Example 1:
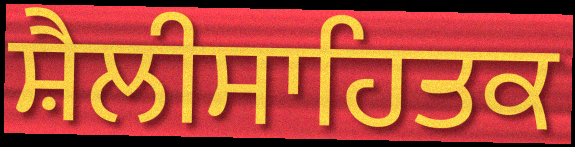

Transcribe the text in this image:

ਸ਼ੈਲੀਸਾਹਿਤਕ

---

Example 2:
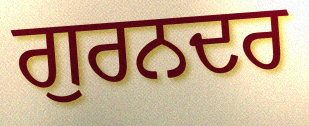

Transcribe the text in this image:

ਗੁਰਨਦਰ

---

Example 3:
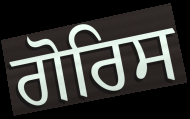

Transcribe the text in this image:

ਗੋਰਿਸ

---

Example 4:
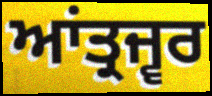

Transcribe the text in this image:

ਆਂਤ੍ਰਜ੍ਵਰ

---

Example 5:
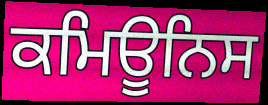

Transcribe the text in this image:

ਕਮਿਊਨਿਸ